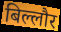
बिल्लौर